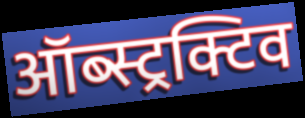
ऑब्स्ट्रक्टिव